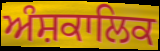
ਅੰਸ਼ਕਾਲਿਕ